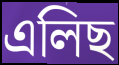
এলিছ